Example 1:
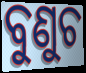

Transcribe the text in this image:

ବୁଣୁଚ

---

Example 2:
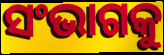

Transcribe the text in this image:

ସଂଭାଗକୁ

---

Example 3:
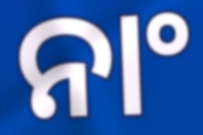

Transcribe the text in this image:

ନାଂ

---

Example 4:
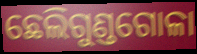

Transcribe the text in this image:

ଛେଲିଗୁଣ୍ଡଗୋଳା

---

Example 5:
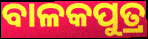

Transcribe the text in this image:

ବାଳକପୁତ୍ର